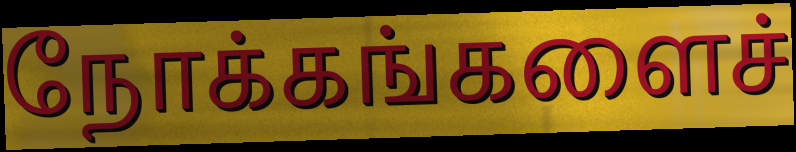
நோக்கங்களைச்